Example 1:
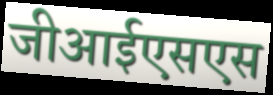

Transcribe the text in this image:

जीआईएसएस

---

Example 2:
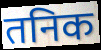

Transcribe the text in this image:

तनिक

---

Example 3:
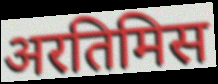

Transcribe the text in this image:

अरतिमिस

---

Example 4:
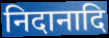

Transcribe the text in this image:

निदानादि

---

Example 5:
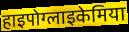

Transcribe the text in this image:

हाइपोग्लाइकेमिया